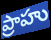
ప్రాహు